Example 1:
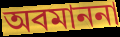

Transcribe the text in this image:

অবমাননা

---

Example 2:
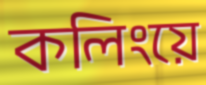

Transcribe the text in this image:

কলিংয়ে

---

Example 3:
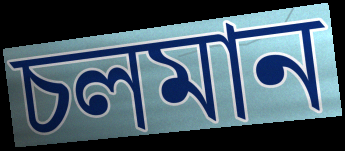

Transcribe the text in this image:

চলমান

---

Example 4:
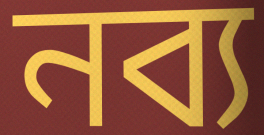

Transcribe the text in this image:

নব্য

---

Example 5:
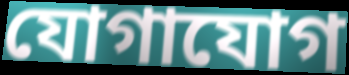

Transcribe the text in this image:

যোগাযোগ